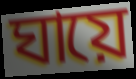
ঘায়ে